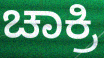
ಚಾಕ್ರಿ